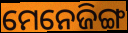
ମେନେଜିଙ୍ଗ